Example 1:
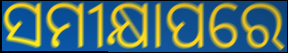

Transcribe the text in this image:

ସମୀକ୍ଷାପରେ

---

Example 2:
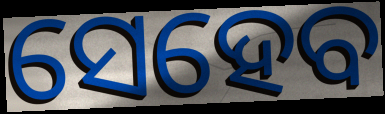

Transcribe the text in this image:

ସେହେବ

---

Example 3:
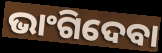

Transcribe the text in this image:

ଭାଂଗିଦେବା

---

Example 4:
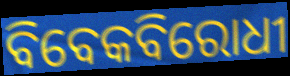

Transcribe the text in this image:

ବିବେକବିରୋଧୀ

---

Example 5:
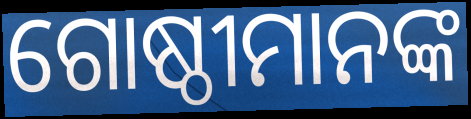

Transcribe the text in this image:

ଗୋଷ୍ଠୀମାନଙ୍କ